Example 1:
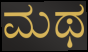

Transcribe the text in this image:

ಮಥ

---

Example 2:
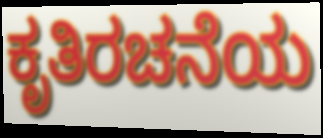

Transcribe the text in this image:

ಕೃತಿರಚನೆಯ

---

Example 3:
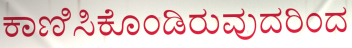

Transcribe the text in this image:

ಕಾಣಿಸಿಕೊಂಡಿರುವುದರಿಂದ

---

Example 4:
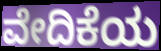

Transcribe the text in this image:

ವೇದಿಕೆಯ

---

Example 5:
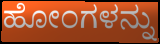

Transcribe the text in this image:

ಹೋಂಗಳನ್ನು